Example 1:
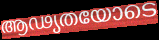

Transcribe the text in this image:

ആഢ്യതയോടെ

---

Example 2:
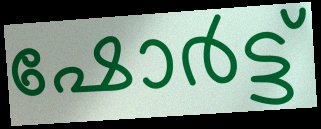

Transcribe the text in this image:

ഷോർട്ട്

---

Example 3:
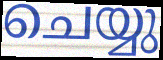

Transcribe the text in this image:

ചെയ്യു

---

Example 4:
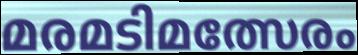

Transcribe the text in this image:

മരമടിമത്സേരം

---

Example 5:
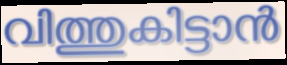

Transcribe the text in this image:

വിത്തുകിട്ടാൻ